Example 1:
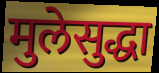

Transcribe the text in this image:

मुलेसुद्धा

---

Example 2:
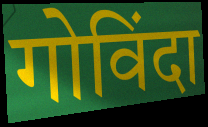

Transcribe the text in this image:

गोविंदा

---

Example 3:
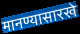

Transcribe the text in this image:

मानण्यासारखे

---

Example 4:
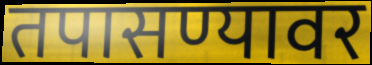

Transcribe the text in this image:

तपासण्यावर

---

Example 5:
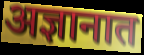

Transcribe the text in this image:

अज्ञानात